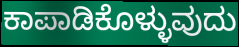
ಕಾಪಾಡಿಕೊಳ್ಳುವುದು